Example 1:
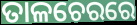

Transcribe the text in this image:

ତାଳଚେରରେ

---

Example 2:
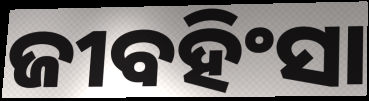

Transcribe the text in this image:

ଜୀବହିଂସା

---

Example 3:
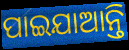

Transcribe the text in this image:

ପାଇଯାଆନ୍ତି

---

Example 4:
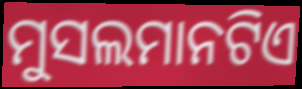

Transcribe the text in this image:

ମୁସଲମାନଟିଏ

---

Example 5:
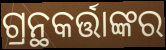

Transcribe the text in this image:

ଗ୍ରନ୍ଥକର୍ତ୍ତାଙ୍କର